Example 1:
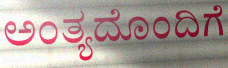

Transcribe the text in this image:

ಅಂತ್ಯದೊಂದಿಗೆ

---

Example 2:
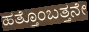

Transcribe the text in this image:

ಹತ್ತೊಂಬತ್ತನೇ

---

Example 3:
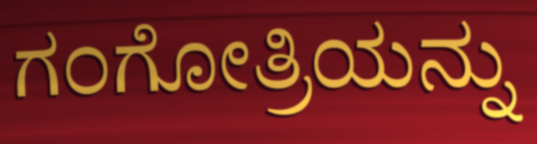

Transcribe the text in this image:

ಗಂಗೋತ್ರಿಯನ್ನು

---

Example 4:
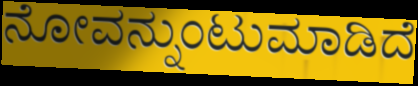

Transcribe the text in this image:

ನೋವನ್ನುಂಟುಮಾಡಿದೆ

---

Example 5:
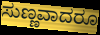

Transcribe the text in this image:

ಸುಣ್ಣವಾದರೂ